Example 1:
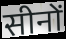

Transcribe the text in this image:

सीनों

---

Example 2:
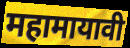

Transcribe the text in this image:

महामायावी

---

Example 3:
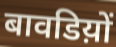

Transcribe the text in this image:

बावडिय़ों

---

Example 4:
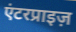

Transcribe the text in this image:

एंटरप्राइज़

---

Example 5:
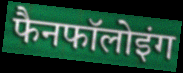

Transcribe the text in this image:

फैनफॉलोइंग